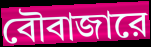
বৌবাজারে